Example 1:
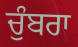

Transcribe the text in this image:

ਚੁੰਬਰਾ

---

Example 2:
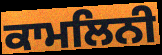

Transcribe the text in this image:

ਕਾਮਲਿਨੀ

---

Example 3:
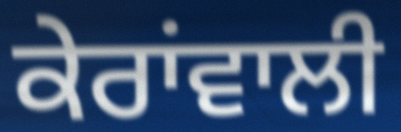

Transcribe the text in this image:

ਕੇਰਾਂਵਾਲੀ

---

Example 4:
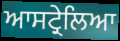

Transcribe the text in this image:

ਆਸਟ੍ਰੇਲਿਆ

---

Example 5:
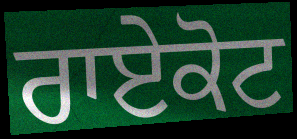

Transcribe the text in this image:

ਰਾਏਕੋਟ